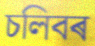
চলিবৰ